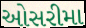
ઓસરીમા